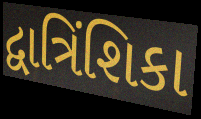
દ્વાત્રિંશિકા